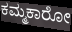
ಕಮ್ಮಕಾರೋ